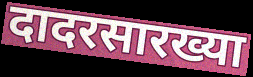
दादरसारख्या